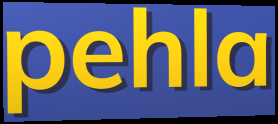
pehla